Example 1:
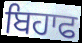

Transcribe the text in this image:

ਬਿਹਾਫ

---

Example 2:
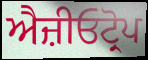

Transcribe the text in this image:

ਐਜ਼ੀਓਟ੍ਰੋਪ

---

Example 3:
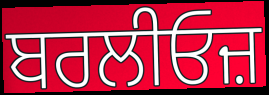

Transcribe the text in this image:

ਬਰਲੀਓਜ਼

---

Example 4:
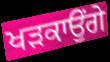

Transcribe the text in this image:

ਖੜਕਾਉਂਗੇ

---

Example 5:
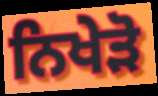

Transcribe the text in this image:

ਨਿਖੇੜੋ